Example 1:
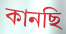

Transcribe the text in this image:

কানছি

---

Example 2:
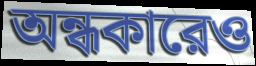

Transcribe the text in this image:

অন্ধকারেও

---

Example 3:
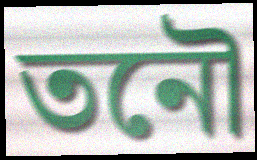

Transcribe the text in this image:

তনৌ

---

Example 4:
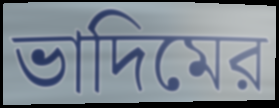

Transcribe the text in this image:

ভাদিমের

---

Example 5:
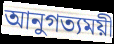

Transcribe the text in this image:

আনুগত্যময়ী